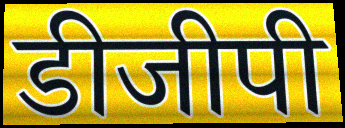
डीजीपी